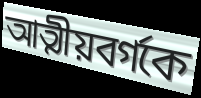
আত্মীয়বর্গকে